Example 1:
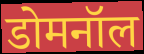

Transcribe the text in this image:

डोमनॉल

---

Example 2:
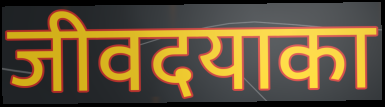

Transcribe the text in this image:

जीवदयाका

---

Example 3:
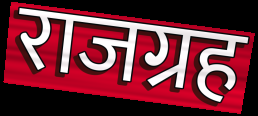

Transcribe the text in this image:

राजग्रह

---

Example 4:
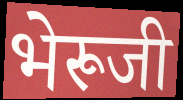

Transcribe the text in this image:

भेरूजी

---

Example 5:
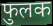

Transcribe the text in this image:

फुलक